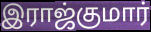
இராஜ்குமார்